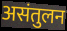
असंतुलन